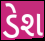
ડેશ